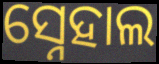
ସ୍ନେହାଲ